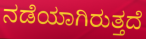
ನಡೆಯಾಗಿರುತ್ತದೆ